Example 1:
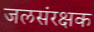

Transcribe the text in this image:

जलसंरक्षक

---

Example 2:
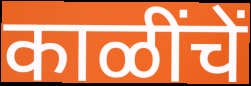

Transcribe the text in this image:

काळींचें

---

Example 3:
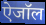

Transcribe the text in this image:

ऐजॉल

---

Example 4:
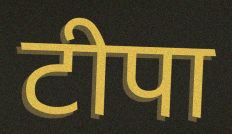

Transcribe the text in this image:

टीपा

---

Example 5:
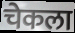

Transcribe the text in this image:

चेकला